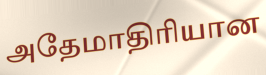
அதேமாதிரியான